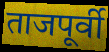
ताजपूर्वी